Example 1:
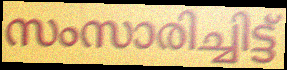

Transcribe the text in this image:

സംസാരിച്ചിട്ട്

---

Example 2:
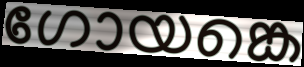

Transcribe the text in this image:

ഗോയങ്കെ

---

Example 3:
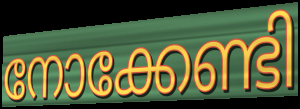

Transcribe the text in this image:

നോക്കേണ്ടി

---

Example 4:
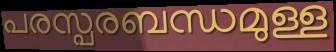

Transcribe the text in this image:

പരസ്പരബന്ധമുള്ള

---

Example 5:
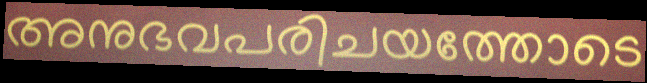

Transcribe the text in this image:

അനുഭവപരിചയത്തോടെ